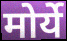
मोर्ये